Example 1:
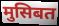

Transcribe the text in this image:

मुसिबत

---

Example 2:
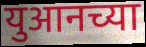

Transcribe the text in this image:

युआनच्या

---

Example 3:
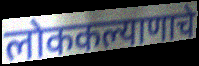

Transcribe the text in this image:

लोककल्याणाचे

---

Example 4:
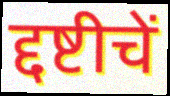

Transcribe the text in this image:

द्दष्टीचें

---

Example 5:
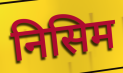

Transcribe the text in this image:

निसिम